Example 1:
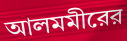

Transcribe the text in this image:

আলমমীরের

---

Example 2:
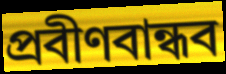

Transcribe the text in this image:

প্রবীণবান্ধব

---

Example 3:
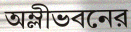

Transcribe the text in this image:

অম্লীভবনের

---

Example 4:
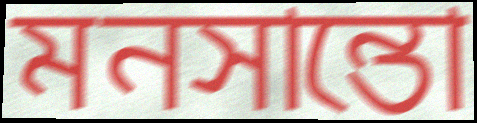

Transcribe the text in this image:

মনসান্তো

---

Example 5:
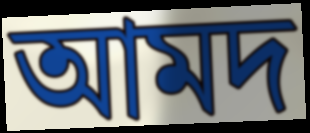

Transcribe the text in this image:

আমদ